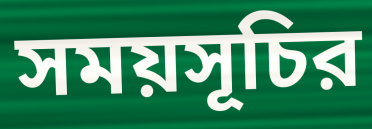
সময়সূচির